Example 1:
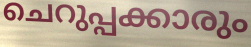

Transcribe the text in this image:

ചെറുപ്പക്കാരും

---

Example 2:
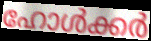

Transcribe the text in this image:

ഹോൾക്കർ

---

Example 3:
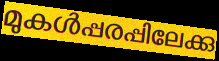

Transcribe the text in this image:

മുകൾപ്പരപ്പിലേക്കു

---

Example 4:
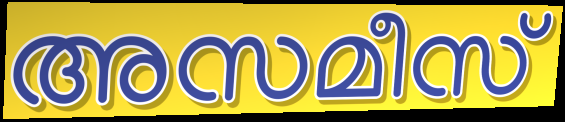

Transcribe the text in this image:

അസമീസ്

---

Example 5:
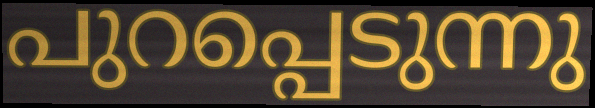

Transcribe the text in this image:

പുറപ്പെടുന്നു